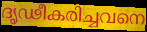
ദൃഢീകരിച്ചവനെ